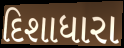
દિશાધારા